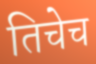
तिचेच